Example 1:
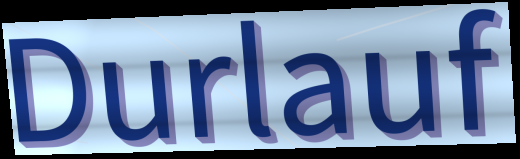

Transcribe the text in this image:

Durlauf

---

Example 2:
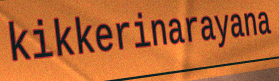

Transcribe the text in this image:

kikkerinarayana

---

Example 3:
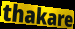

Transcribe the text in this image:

thakare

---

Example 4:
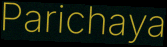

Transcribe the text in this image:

Parichaya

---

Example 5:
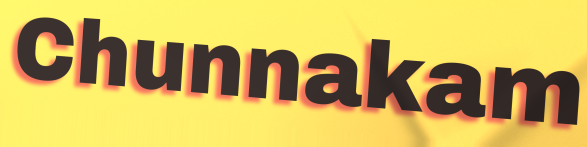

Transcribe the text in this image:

Chunnakam